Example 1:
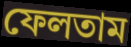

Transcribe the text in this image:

ফেলতাম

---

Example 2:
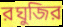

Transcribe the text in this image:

রঘুজির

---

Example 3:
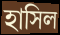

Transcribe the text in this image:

হাসিল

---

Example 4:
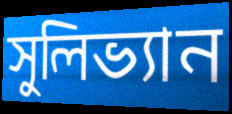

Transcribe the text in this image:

সুলিভ্যান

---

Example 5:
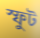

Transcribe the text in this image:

স্ফুট